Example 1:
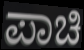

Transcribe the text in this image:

ಪಾಚಿ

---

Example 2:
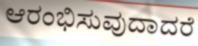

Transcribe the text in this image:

ಆರಂಭಿಸುವುದಾದರೆ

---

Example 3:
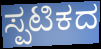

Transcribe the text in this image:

ಸ್ಪಟಿಕದ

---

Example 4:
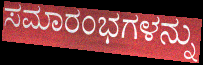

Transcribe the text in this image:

ಸಮಾರಂಭಗಳನ್ನು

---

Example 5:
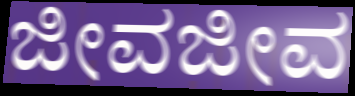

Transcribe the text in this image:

ಜೀವಜೀವ